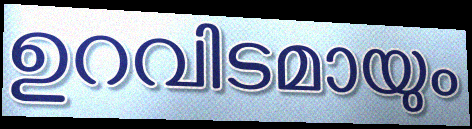
ഉറവിടമായും